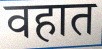
वहात